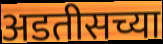
अडतीसच्या